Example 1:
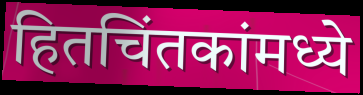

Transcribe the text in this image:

हितचिंतकांमध्ये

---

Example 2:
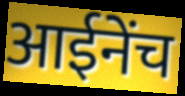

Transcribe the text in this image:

आईनेंच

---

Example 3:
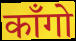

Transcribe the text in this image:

काँगो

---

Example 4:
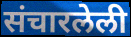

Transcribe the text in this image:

संचारलेली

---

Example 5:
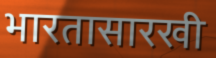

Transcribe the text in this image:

भारतासारखी